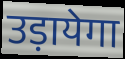
उड़ायेगा